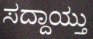
ಸದ್ದಾಯ್ತು